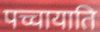
पच्चायाति